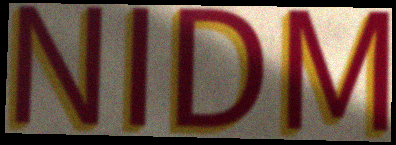
NIDM